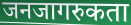
जनजागरुकता